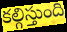
కల్గిస్తుంది